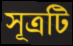
সূত্রটি